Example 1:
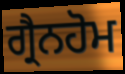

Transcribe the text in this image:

ਗ੍ਰੈਨਹੋਮ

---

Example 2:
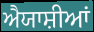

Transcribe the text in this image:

ਐਯਾਸ਼ੀਆਂ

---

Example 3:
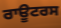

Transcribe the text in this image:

ਰਾਊਟਰਸ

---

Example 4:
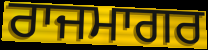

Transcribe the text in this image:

ਰਾਜਮਾਗਰ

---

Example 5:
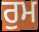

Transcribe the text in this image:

ਰੁਮ